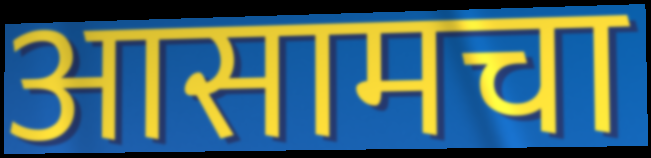
आसामचा